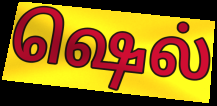
ஷெல்